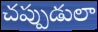
చప్పుడులా